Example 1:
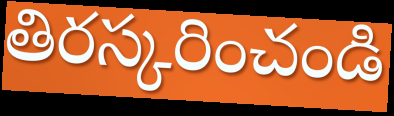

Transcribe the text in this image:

తిరస్కరించండి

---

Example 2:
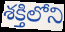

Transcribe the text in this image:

శక్తిలోని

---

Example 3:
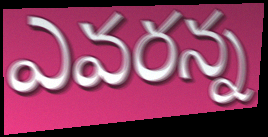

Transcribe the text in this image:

ఎవరన్న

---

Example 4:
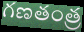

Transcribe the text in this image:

గణతంత్ర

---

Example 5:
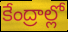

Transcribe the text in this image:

కేంద్రాల్లో